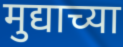
मुद्याच्या